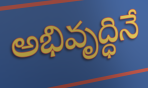
అభివృద్ధినే